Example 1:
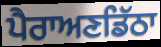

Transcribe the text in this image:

ਪੈਰਾਅਣਡਿੱਠਾ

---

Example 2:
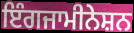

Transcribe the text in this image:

ਇੰਗਜਾਮੀਨੇਸ਼ਨ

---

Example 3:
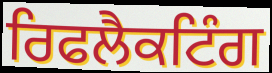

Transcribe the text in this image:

ਰਿਫਲੈਕਟਿੰਗ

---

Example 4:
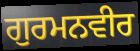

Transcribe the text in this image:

ਗੁਰਮਨਵੀਰ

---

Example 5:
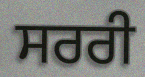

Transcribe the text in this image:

ਸਰਰੀ